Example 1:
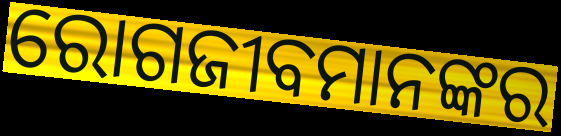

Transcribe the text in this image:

ରୋଗଜୀବମାନଙ୍କର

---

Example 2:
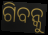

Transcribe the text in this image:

ଗିବନ୍କୁ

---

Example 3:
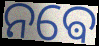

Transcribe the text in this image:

ନଵେ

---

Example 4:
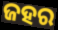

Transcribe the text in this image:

ଜହର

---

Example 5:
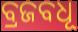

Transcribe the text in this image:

ବ୍ରଜବଧୂ